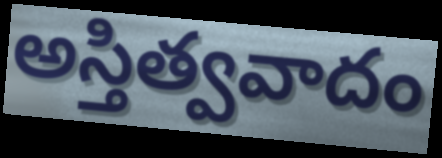
అస్తిత్వవాదం